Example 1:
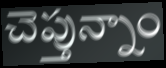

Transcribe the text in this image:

చెప్తున్నాం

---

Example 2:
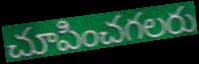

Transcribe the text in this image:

చూపించగలరు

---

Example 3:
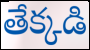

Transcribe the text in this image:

తేక్కడి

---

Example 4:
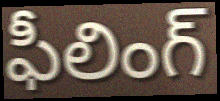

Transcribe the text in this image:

ఫీలింగ్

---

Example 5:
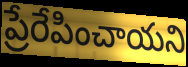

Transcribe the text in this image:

ప్రేరేపించాయని